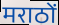
मराठों